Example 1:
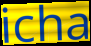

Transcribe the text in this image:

icha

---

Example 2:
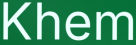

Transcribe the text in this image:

Khem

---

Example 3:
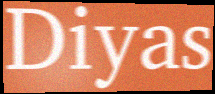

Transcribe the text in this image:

Diyas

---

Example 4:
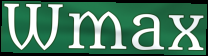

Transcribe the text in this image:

Wmax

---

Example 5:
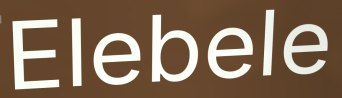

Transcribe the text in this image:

Elebele